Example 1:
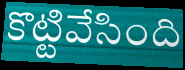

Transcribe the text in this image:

కొట్టివేసింది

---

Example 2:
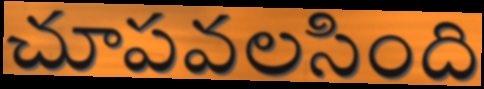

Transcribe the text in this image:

చూపవలసింది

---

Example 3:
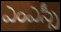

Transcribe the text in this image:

ఎంఎస్సీ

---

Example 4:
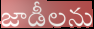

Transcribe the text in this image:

జాడీలను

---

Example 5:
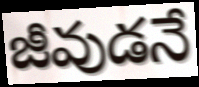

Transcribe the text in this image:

జీవుడనే